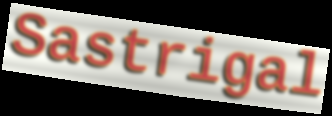
Sastrigal